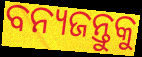
ବନ୍ୟଜନ୍ତୁକୁ